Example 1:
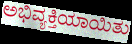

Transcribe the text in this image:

ಅಭಿವ್ಯಕ್ತಿಯಾಯಿತು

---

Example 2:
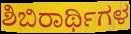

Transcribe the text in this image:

ಶಿಬಿರಾರ್ಥಿಗಳ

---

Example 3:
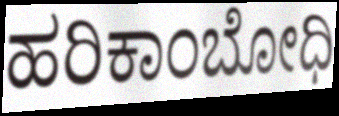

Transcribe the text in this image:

ಹರಿಕಾಂಬೋಧಿ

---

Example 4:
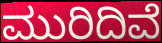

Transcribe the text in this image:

ಮುರಿದಿವೆ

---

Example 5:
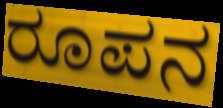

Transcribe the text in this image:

ರೂಪನ